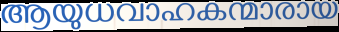
ആയുധവാഹകന്മാരായ